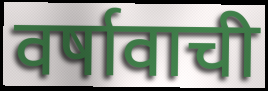
वर्षावाची